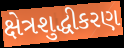
ક્ષેત્રશુદ્ધીકરણ